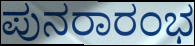
ಪುನರಾರಂಭ